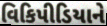
વિકિપીડિયાને